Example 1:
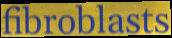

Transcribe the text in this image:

fibroblasts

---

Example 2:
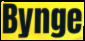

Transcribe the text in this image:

Bynge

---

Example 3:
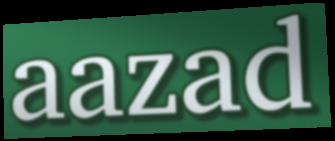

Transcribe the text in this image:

aazad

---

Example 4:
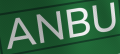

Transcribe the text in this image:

ANBU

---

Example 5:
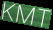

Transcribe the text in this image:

KMT